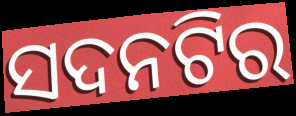
ସଦନଟିର